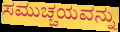
ಸಮುಚ್ಚಯವನ್ನು